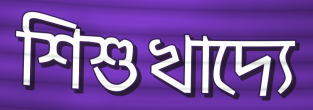
শিশুখাদ্যে